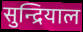
सुन्द्रियाल